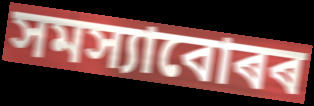
সমস্যাবোৰৰ